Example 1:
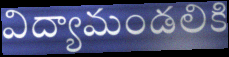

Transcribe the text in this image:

విద్యామండలికి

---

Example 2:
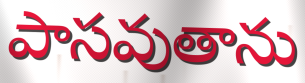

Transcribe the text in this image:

పాసవుతాను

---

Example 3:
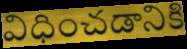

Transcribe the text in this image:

విధించడానికి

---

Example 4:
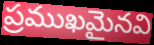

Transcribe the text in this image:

ప్రముఖమైనవి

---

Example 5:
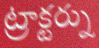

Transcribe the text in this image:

ట్రాక్టర్ను